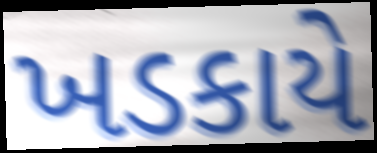
ખડકાયે